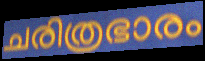
ചരിത്രഭാരം